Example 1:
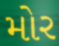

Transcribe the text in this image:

મોર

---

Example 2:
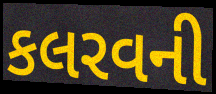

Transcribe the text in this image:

કલરવની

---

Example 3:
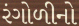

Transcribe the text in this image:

રંગોળીનો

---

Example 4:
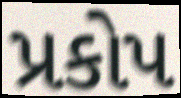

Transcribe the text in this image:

પ્રકોપ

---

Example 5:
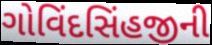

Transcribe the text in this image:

ગોવિંદસિંહજીની